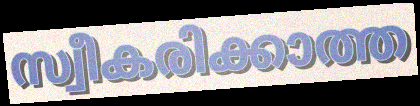
സ്വീകരിക്കാത്ത